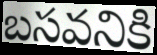
బసవనికి